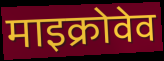
माइक्रोवेव